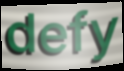
defy